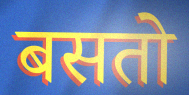
बसतो